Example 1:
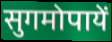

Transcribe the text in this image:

सुगमोपायें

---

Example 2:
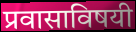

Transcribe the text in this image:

प्रवासाविषयी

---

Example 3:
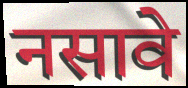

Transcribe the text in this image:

नसावे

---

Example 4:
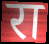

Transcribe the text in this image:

रा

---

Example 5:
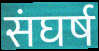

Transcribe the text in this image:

संघर्ष